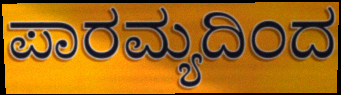
ಪಾರಮ್ಯದಿಂದ